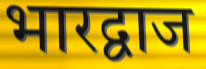
भारद्वाज